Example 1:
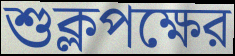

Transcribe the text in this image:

শুক্লপক্ষের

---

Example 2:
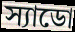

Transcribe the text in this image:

স্যাডো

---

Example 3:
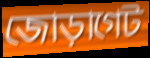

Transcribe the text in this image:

জোড়াগেট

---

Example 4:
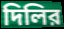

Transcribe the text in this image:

দিলির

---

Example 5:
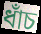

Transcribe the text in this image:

ধাঁচ